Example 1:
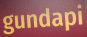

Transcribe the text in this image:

gundapi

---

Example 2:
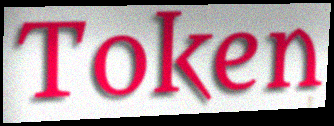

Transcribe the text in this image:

Token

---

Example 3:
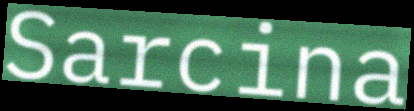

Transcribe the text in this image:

Sarcina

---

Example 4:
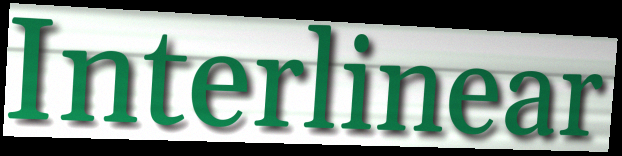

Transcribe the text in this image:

Interlinear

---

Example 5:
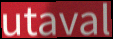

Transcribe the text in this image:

utaval